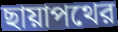
ছায়াপথের